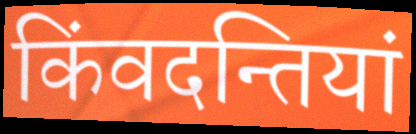
किंवदन्तियां